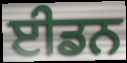
ਈਡਨ